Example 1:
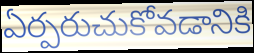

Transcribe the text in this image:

ఏర్పరుచుకోవడానికి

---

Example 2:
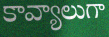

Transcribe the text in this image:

కావ్యాలుగా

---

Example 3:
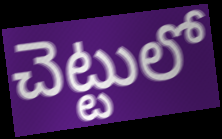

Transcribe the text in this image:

చెట్టులో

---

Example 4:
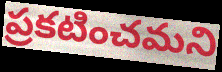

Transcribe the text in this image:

ప్రకటించమని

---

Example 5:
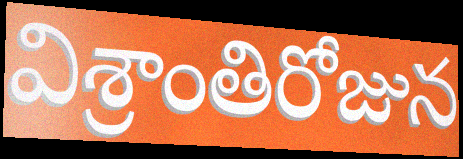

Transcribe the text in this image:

విశ్రాంతిరోజున